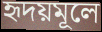
হৃদয়মূলে